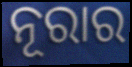
ନୂରାର